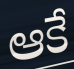
ఆకే